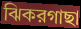
ঝিকরগাছা